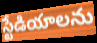
స్టేడియాలను